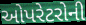
ઓપરેટરોની